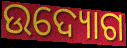
ଉଦ୍ୟୋଗ